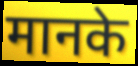
मानके